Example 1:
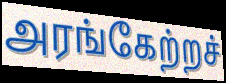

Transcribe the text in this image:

அரங்கேற்றச்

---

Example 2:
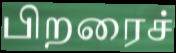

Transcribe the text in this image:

பிறரைச்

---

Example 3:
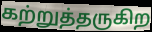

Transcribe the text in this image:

கற்றுத்தருகிற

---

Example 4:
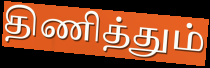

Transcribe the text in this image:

திணித்தும்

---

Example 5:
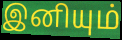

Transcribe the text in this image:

இனியும்